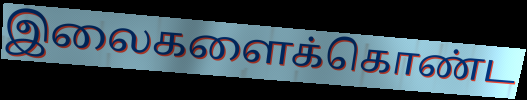
இலைகளைக்கொண்ட